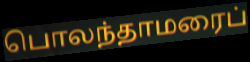
பொலந்தாமரைப்